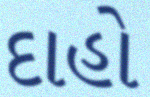
દાહો